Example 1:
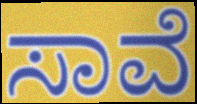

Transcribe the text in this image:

ಸಾವೆ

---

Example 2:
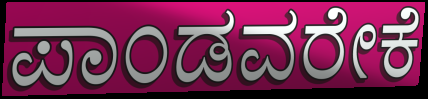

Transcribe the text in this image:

ಪಾಂಡವರೇಕೆ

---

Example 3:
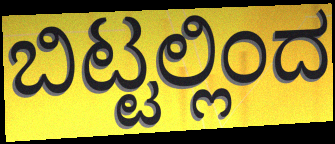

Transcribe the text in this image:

ಬಿಟ್ಟಲ್ಲಿಂದ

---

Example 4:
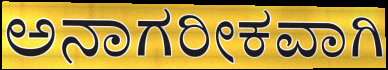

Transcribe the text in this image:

ಅನಾಗರೀಕವಾಗಿ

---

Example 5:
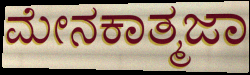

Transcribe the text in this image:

ಮೇನಕಾತ್ಮಜಾ